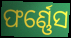
ଫର୍ଣ୍ଣେସ